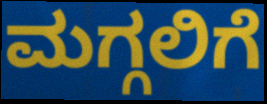
ಮಗ್ಗಲಿಗೆ